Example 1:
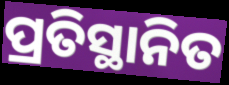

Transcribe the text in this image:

ପ୍ରତିସ୍ଥାନିତ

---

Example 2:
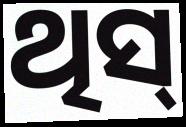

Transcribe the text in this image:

ଥିସ୍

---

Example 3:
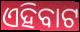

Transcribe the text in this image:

ଏହିବାଟ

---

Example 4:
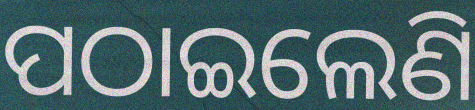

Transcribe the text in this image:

ପଠାଇଲେଣି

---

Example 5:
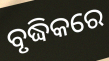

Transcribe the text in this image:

ବୃଦ୍ଧିକରେ